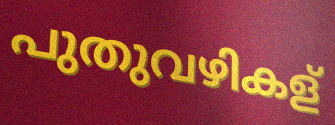
പുതുവഴികള്